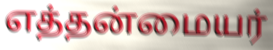
எத்தன்மையர்